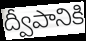
ద్వీపానికి